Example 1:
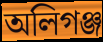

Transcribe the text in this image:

অলিগঞ্জ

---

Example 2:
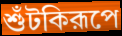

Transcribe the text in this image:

শুঁটকিরূপে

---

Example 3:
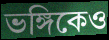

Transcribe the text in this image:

ভঙ্গিকেও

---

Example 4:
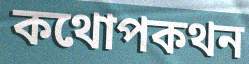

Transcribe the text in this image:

কথোপকথন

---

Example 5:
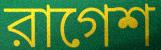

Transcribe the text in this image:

রাগেশ